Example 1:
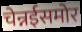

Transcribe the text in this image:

चेन्नईसमोर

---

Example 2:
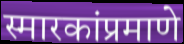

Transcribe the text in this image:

स्मारकांप्रमाणे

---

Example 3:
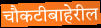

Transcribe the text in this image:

चौकटीबाहेरील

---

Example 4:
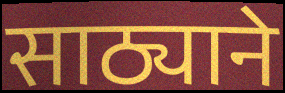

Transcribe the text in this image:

साठ्याने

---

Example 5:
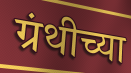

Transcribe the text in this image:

ग्रंथीच्या